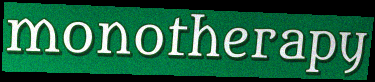
monotherapy